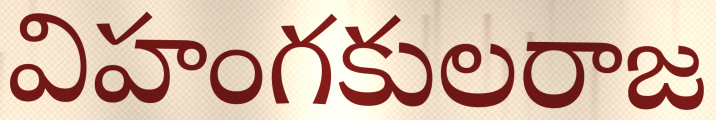
విహంగకులరాజ